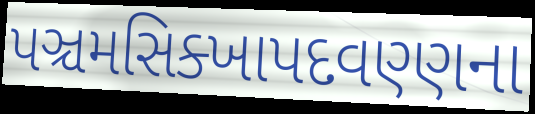
પઞ્ચમસિક્ખાપદવણ્ણના